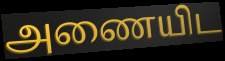
அணையிட